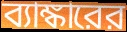
ব্যাঙ্কারের